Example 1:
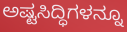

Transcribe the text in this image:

ಅಷ್ಟಸಿದ್ಧಿಗಳನ್ನೂ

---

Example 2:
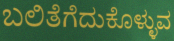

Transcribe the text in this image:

ಬಲಿತೆಗೆದುಕೊಳ್ಳುವ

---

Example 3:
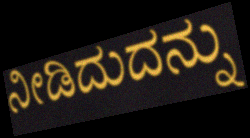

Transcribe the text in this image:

ನೀಡಿದುದನ್ನು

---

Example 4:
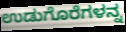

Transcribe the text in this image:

ಉಡುಗೊರೆಗಳನ್ನ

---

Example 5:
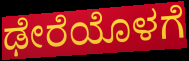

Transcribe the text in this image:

ಢೇರೆಯೊಳಗೆ